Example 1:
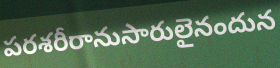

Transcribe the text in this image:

పరశరీరానుసారులైనందున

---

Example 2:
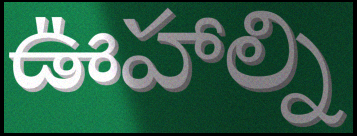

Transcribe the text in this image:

ఊహాల్ని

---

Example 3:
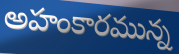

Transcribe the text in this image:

అహంకారమున్న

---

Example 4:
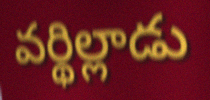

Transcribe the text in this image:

వర్థిల్లాడు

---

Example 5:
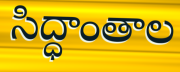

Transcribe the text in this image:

సిద్ధాంతాల